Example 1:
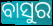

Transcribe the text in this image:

ବାସୁର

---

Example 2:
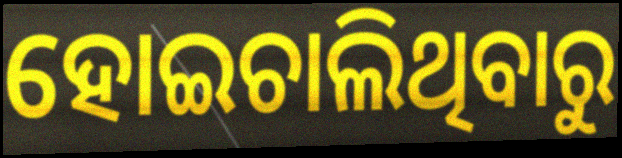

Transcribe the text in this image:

ହୋଇଚାଲିଥିବାରୁ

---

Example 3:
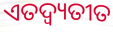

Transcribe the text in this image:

ଏତଦ୍ବ୍ୟତୀତ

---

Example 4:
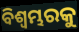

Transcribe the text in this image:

ବିଶ୍ୱମ୍ଭରକୁ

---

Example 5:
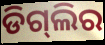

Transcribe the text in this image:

ଡିଗ୍‌ଲିର